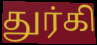
துர்கி